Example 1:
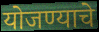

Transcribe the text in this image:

योजण्याचे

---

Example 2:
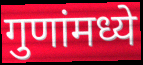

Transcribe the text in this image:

गुणांमध्ये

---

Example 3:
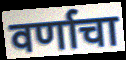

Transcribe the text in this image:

वर्णाचा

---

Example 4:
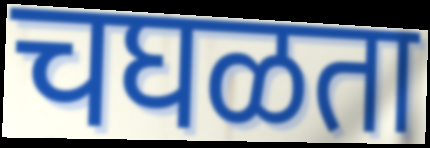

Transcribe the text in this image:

चघळता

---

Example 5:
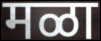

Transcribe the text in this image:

मळा